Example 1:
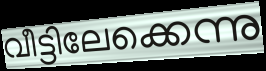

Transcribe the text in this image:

വീട്ടിലേക്കെന്നു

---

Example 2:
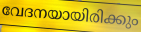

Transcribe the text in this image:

വേദനയായിരിക്കും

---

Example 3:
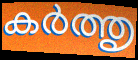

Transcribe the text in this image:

കർത്തൃ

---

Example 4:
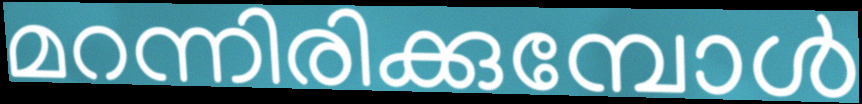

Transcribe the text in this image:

മറന്നിരിക്കുമ്പോൾ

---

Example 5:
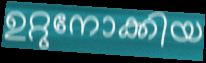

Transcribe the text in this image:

ഉറ്റുനോക്കിയ